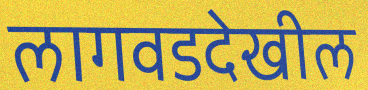
लागवडदेखील